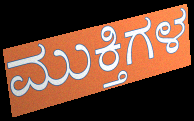
ಮುಕ್ತಿಗಳ